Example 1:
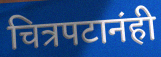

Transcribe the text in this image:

चित्रपटानंही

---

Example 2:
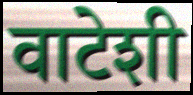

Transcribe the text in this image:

वाटेशी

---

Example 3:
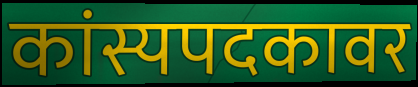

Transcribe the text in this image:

कांस्यपदकावर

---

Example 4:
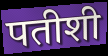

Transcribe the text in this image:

पतीशी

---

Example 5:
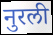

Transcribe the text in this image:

नुरली